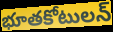
భూతకోటులన్